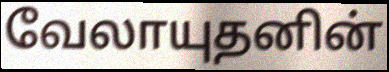
வேலாயுதனின்